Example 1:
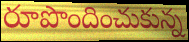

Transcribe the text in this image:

రూపొందించుకున్న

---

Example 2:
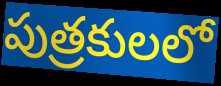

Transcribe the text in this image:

పుత్రకులలో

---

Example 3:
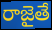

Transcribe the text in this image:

రాజైతే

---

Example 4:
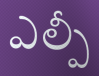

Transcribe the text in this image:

ఎల్పీ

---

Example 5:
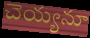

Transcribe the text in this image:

చెయ్యనూ